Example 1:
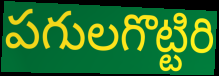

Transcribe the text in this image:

పగులగొట్టిరి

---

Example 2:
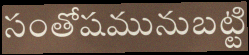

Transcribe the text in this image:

సంతోషమునుబట్టి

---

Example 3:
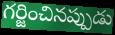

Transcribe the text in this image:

గర్జించినప్పుడు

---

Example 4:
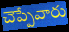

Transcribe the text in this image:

చెప్పేవారు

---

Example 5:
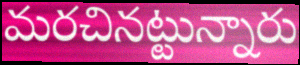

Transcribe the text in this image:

మరచినట్టున్నారు